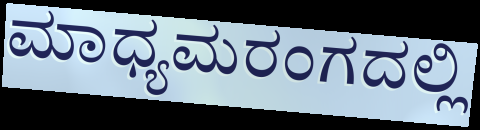
ಮಾಧ್ಯಮರಂಗದಲ್ಲಿ